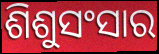
ଶିଶୁସଂସାର